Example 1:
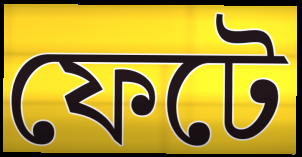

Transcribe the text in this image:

ফেটে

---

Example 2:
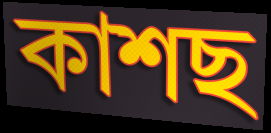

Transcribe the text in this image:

কাশছ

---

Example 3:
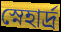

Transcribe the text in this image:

স্নেহার্দ্র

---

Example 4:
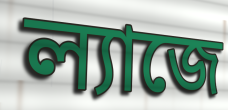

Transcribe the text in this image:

ল্যাজে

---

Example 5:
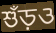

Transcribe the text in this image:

শুঁড়ও